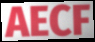
AECF